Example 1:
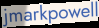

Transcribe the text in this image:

jmarkpowell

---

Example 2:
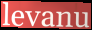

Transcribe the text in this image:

levanu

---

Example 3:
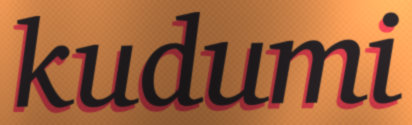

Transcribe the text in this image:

kudumi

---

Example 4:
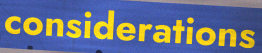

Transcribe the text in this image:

considerations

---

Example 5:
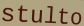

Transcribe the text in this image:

stulto